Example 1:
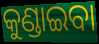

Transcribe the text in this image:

କୁଣ୍ଡାଇବା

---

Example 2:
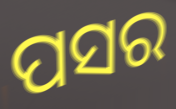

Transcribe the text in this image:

ପସର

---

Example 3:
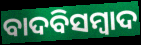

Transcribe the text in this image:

ବାଦବିସମ୍ବାଦ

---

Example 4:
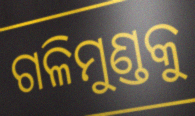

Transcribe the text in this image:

ଗଳିମୁଣ୍ଡକୁ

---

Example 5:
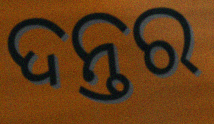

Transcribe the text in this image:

ଦନ୍ତର